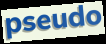
pseudo